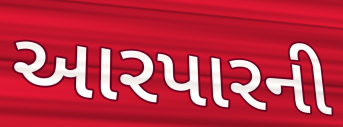
આરપારની